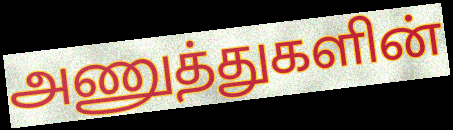
அணுத்துகளின்